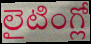
లైటింగ్లో